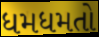
ધમધમતો